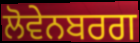
ਲੋਵੇਨਬਰਗ